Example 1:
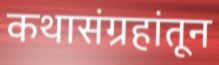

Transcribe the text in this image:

कथासंग्रहांतून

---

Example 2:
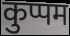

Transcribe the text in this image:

कुप्पम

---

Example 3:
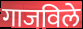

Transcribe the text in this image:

गाजविले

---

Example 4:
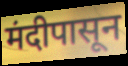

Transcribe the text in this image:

मंदीपासून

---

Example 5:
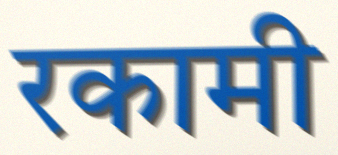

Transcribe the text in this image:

रकामी